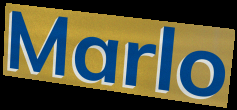
Marlo